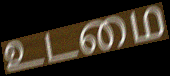
உடமை